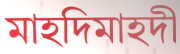
মাহদিমাহদী